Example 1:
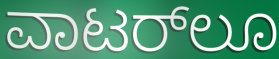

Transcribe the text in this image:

ವಾಟರ್‌ಲೂ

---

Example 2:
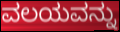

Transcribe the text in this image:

ವಲಯವನ್ನು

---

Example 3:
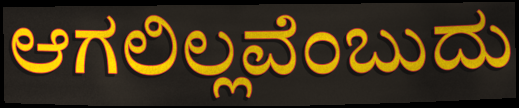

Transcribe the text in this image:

ಆಗಲಿಲ್ಲವೆಂಬುದು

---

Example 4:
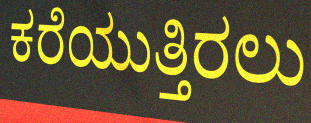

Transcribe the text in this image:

ಕರೆಯುತ್ತಿರಲು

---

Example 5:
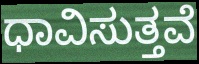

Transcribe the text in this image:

ಧಾವಿಸುತ್ತವೆ